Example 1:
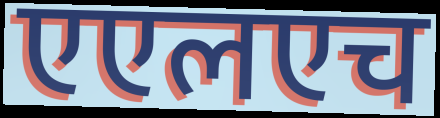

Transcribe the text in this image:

एएलएच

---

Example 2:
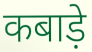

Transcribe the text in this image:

कबाड़े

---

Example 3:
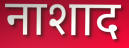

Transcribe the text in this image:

नाशाद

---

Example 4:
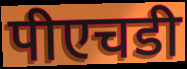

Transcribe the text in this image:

पीएचडी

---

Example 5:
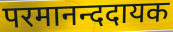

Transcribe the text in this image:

परमानन्ददायक